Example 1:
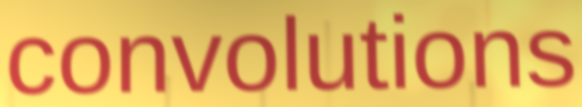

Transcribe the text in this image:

convolutions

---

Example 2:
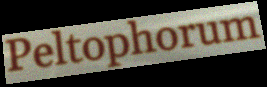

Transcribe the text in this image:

Peltophorum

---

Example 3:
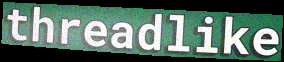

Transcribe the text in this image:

threadlike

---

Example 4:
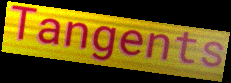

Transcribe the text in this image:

Tangents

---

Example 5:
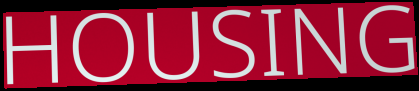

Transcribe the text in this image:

HOUSING